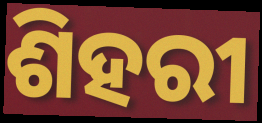
ଶିହରୀ